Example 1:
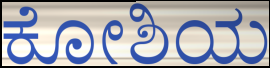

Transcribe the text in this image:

ಕೋಶಿಯ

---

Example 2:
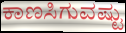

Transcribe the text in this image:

ಕಾಣಸಿಗುವಷ್ಟು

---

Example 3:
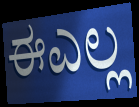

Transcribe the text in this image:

ಈಎಲ್ಲ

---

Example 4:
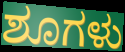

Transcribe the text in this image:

ಶೂಗಳು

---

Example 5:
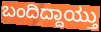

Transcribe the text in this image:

ಬಂದಿದ್ದಾಯ್ತು